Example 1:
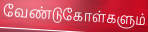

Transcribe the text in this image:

வேண்டுகோள்களும்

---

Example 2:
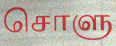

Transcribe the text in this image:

சொளு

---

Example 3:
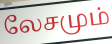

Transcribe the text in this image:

லேசமும்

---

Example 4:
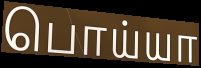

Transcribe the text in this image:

பொய்யா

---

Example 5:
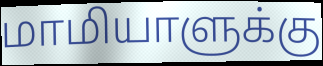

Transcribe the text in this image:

மாமியாளுக்கு